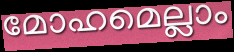
മോഹമെല്ലാം